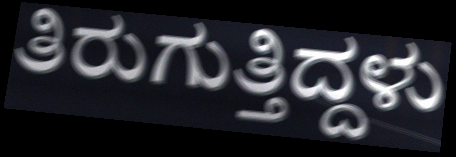
ತಿರುಗುತ್ತಿದ್ದಳು